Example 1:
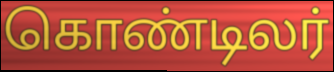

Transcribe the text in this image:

கொண்டிலர்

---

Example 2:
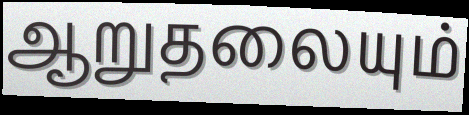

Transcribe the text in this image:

ஆறுதலையும்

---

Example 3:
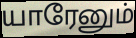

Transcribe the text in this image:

யாரேனும்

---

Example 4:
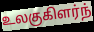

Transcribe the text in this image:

உலகுகிளர்ந்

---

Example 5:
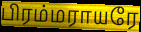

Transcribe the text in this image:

பிரம்மராயரே